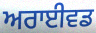
ਅਰਾਈਵਡ